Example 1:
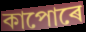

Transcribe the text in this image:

কাপোৰে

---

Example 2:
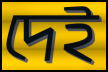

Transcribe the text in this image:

দেই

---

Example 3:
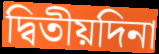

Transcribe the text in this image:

দ্বিতীয়দিনা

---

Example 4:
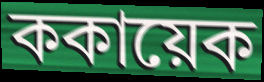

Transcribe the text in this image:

ককায়েক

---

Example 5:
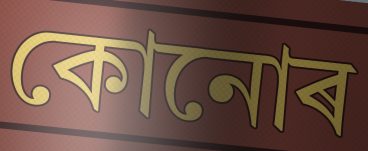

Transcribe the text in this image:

কোনোৰ